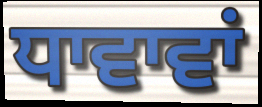
ਧਾਵਾਵਾਂ